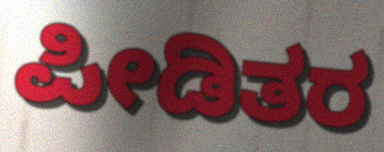
ಪೀಡಿತರ